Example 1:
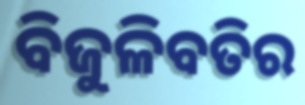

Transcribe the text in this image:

ବିଜୁଳିବତିର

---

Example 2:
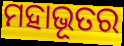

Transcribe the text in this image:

ମହାଭୂତର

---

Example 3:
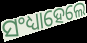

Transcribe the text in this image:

ସଂଧ୍ୟାହେଲେ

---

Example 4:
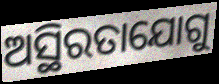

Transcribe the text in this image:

ଅସ୍ଥିରତାଯୋଗୁ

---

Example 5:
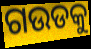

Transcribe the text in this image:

ଗଉଡକୁ